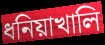
ধনিয়াখালি